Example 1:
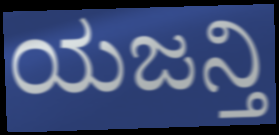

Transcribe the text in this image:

ಯಜನ್ತಿ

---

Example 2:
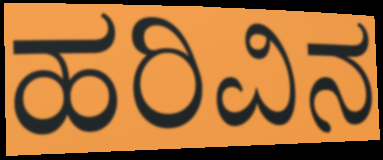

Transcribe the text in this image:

ಹರಿವಿನ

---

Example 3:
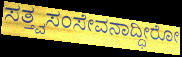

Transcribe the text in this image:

ಸತ್ತ್ವಸಂಸೇವನಾದ್ಧೀರೋ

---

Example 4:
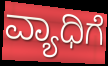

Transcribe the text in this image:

ವ್ಯಾಧಿಗೆ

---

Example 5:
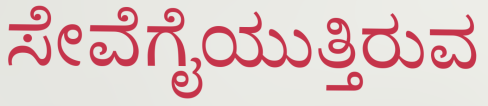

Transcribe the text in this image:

ಸೇವೆಗೈಯುತ್ತಿರುವ